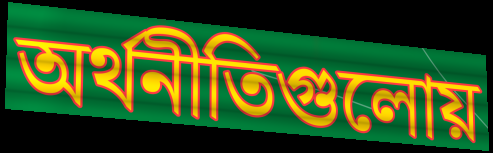
অর্থনীতিগুলোয়